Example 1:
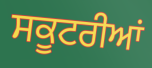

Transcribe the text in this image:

ਸਕੂਟਰੀਆਂ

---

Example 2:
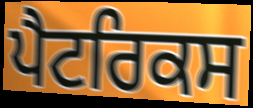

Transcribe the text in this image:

ਪੈਟਰਿਕਸ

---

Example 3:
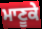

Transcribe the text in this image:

ਮਾਣੂਕੇ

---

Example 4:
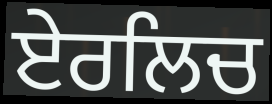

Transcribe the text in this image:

ਏਰਲਿਚ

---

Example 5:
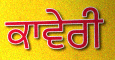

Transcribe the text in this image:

ਕਾਵੇਰੀ